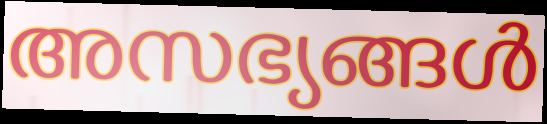
അസഭ്യങ്ങൾ